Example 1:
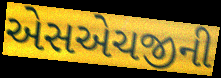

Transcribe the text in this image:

એસએચજીની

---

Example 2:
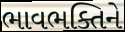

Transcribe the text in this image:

ભાવભક્તિને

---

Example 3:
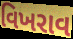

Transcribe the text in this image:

વિખરાવ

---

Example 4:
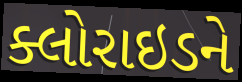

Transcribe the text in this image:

ક્લોરાઇડને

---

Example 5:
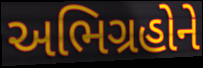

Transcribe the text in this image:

અભિગ્રહોને